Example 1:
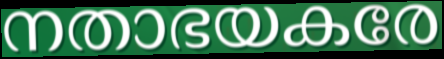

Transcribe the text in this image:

നതാഭയകരേ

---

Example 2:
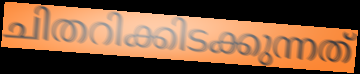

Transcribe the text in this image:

ചിതറിക്കിടക്കുന്നത്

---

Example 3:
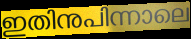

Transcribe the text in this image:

ഇതിനുപിന്നാലെ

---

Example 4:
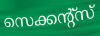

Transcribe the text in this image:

സെക്കന്റ്സ്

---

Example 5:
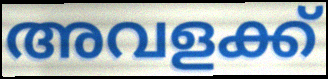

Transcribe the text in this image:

അവളക്ക്